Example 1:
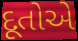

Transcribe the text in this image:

દૂતોએ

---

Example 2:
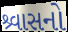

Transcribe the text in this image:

શ્ર્વાસનો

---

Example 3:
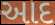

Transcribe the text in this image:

આદ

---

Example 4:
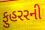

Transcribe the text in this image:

ફુહરરની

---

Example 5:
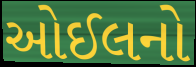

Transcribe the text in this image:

ઓઈલનો